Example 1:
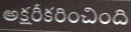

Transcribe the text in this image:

అక్షరీకరించింది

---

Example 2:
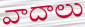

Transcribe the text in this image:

వాదాలు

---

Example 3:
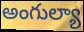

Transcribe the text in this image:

అంగుల్యా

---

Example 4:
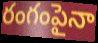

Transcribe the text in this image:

రంగంపైనా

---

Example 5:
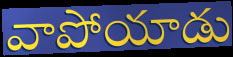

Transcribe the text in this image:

వాపోయాడు